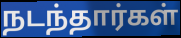
நடந்தார்கள்